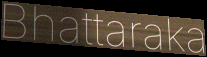
Bhattaraka